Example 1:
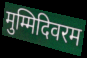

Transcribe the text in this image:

मुम्मिदिवरम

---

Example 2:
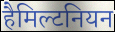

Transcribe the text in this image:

हैमिल्टनियन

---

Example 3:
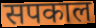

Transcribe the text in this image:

सपकाल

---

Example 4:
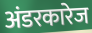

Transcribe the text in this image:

अंडरकारेज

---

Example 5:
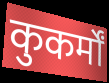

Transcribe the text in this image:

कुकर्मों